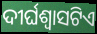
ଦୀର୍ଘଶ୍ୱାସଟିଏ